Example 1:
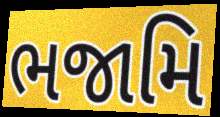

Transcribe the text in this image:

ભજામિ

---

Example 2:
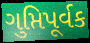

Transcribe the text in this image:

ગુપ્તિપૂર્વક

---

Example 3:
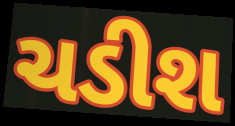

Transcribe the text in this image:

ચડીશ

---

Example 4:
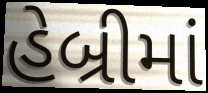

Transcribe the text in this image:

હેબ્રીમાં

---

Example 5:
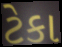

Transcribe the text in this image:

ટેકા